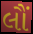
લૌં